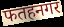
फतहनगर